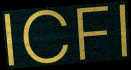
ICFI